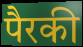
पैरकी